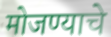
मोजण्याचे